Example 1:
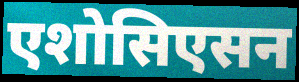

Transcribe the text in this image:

एशोसिएसन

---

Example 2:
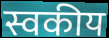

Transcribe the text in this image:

स्वकीय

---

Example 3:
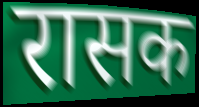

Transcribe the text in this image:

रासक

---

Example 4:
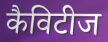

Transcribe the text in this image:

कैविटीज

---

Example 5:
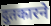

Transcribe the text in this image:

दुतकारने